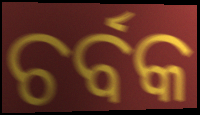
ଚର୍ବକ